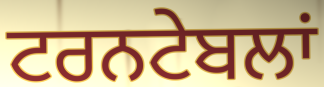
ਟਰਨਟੇਬਲਾਂ